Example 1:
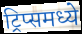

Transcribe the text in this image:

ट्रिप्समध्ये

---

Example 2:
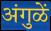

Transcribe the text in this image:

अंगुळें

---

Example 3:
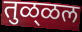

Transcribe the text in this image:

तुळ्‌ळल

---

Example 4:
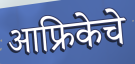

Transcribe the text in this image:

आफ्रिकेचे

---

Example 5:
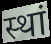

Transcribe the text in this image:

स्थां